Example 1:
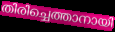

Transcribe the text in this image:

തിരിച്ചെത്താനായി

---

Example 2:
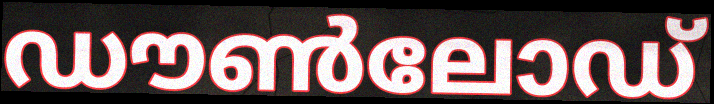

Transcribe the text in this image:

ഡൗൺലോഡ്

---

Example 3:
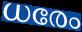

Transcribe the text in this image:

ധരേം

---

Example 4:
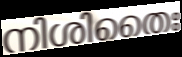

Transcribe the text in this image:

നിശിതൈഃ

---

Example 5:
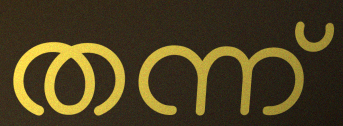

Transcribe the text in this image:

തന്ന്